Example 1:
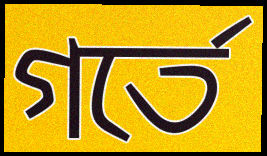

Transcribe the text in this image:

গর্তে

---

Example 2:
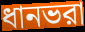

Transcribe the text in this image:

ধানভরা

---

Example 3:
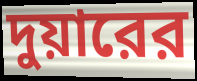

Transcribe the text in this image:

দুয়ারের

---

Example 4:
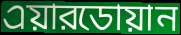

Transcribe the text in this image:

এয়ারডোয়ান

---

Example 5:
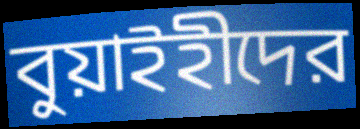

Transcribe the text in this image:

বুয়াইহীদের